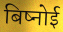
बिष्नोई